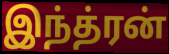
இந்த்ரன்